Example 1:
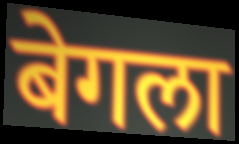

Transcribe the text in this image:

बेगला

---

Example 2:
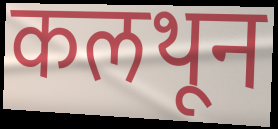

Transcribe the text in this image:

कलथून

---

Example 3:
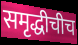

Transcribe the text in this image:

समृद्धीचीच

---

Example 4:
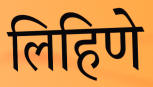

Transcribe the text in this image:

लिहिणे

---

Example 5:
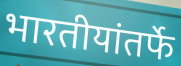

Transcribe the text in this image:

भारतीयांतर्फे